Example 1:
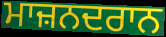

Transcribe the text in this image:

ਮਾਜ਼ਨਦਰਾਨ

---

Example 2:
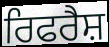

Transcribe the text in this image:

ਰਿਫਰੈਸ਼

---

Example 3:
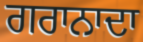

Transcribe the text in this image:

ਗਰਾਨਾਦਾ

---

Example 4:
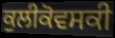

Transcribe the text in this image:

ਕੁਲੀਕੋਵਸਕੀ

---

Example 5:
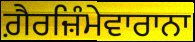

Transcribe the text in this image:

ਗ਼ੈਰਜ਼ਿੰਮੇਵਾਰਾਨਾ